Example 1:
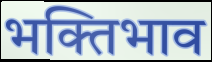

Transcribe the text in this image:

भक्तिभाव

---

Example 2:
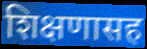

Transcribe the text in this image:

शिक्षणासह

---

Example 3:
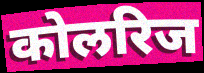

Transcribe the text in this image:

कोलरिज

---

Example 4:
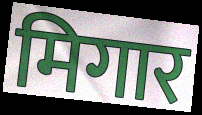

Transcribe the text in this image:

मिगार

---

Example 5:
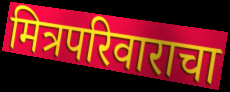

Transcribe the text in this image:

मित्रपरिवाराचा